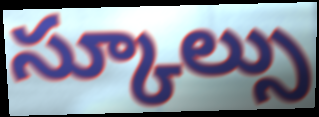
స్కూల్సు